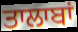
ਤਾਲਾਬਾਂ